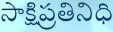
సాక్షిప్రతినిధి